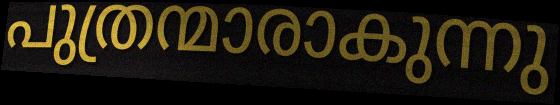
പുത്രന്മാരാകുന്നു